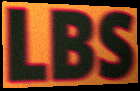
LBS